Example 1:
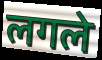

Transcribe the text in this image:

लगले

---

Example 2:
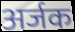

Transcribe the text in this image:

अर्जक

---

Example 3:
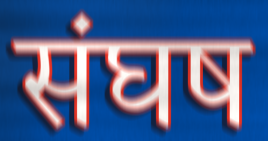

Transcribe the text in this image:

संघष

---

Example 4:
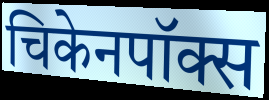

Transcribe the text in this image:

चिकेनपॉक्स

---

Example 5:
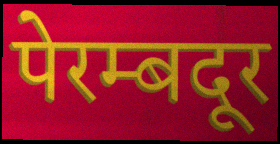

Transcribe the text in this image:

पेरम्बदूर